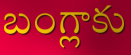
బంగ్లాకు